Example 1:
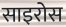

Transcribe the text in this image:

साइरोस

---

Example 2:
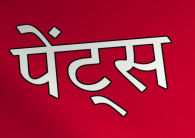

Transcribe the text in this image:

पेंट्स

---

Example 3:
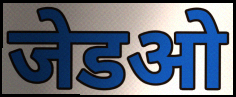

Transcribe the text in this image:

जेडओ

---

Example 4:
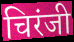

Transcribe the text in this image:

चिरंजी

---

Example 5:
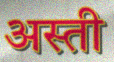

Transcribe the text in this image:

अस्ती